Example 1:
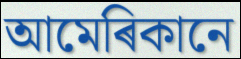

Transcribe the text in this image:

আমেৰিকানে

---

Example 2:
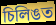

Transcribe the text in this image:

চিলিঙত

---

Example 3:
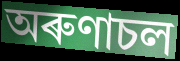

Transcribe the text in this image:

অৰুণাচল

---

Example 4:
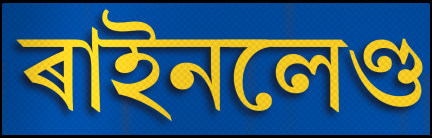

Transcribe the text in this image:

ৰাইনলেণ্ড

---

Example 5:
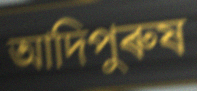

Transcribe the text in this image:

আদিপুৰুষ